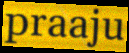
praaju